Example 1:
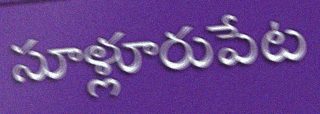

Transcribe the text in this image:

సూళ్లూరుపేట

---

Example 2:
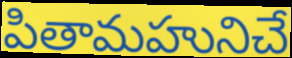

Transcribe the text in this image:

పితామహునిచే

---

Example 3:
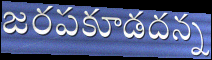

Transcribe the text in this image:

జరపకూడదన్న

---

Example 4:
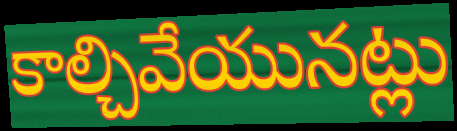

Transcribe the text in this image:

కాల్చివేయునట్లు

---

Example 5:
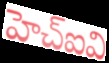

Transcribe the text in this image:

హెచ్ఐవి